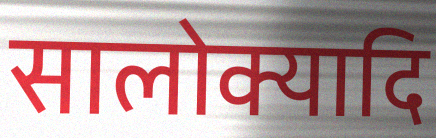
सालोक्यादि